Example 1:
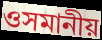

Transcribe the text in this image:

ওসমানীয়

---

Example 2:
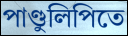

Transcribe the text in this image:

পাণ্ডুলিপিতে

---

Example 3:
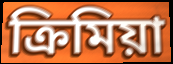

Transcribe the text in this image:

ক্রিমিয়া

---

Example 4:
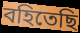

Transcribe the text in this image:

বহিতেছি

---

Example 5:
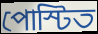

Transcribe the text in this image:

পোস্টিত